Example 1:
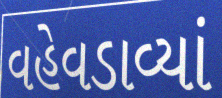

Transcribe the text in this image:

વહેવડાવ્યાં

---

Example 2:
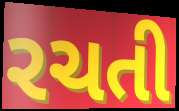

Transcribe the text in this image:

રચતી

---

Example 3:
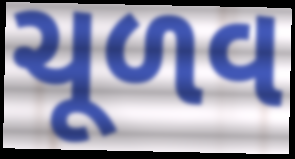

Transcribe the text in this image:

ચૂળવ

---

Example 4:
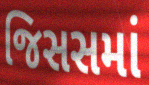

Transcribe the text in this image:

જિસસમાં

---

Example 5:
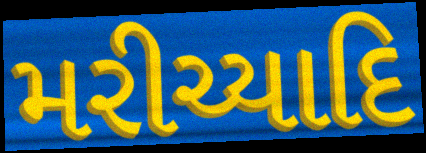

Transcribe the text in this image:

મરીચ્યાદિ